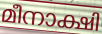
മീനാക്ഷി